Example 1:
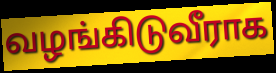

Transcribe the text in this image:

வழங்கிடுவீராக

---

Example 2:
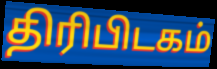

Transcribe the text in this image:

திரிபிடகம்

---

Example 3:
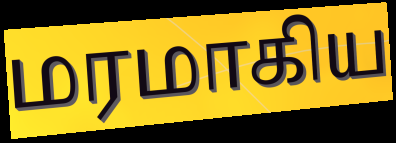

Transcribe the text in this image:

மரமாகிய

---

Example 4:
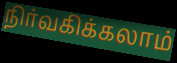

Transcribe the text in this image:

நிர்வகிக்கலாம்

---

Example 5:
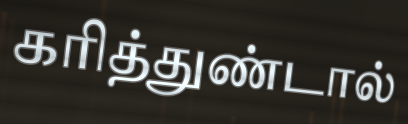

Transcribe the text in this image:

கரித்துண்டால்